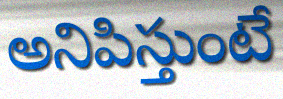
అనిపిస్తుంటే